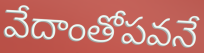
వేదాంతోపవనే